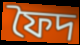
ফৈদ